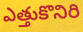
ఎత్తుకొనిరి